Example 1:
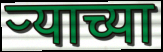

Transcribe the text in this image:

ऱ्याच्या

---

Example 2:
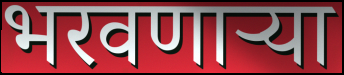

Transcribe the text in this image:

भरवणाऱ्या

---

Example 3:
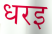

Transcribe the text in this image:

धरइ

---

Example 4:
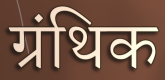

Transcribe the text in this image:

ग्रंथिक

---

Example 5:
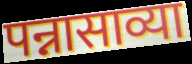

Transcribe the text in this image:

पन्नासाव्या